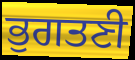
ਭੁਗਤਣੀ